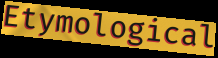
Etymological